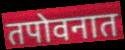
तपोवनात